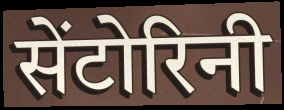
सेंटोरिनी